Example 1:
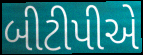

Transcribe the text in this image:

બીટીપીએ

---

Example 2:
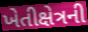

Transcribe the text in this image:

ખેતીક્ષેત્રની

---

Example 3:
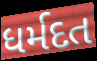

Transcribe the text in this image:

ધર્મદત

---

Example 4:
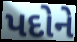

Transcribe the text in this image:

પદોને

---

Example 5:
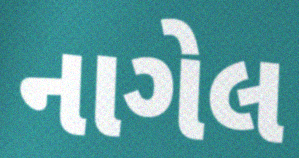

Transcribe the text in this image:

નાગેલ